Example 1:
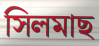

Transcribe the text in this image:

সিলমাছ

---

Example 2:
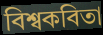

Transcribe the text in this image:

বিশ্বকবিতা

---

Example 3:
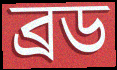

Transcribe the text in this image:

ব্রড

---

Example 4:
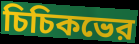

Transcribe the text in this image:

চিচিকভের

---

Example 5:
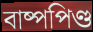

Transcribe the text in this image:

বাষ্পপিণ্ড